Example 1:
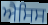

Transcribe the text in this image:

ਐਸਿਸ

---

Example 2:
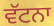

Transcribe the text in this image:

ਵੱਟਨਾ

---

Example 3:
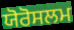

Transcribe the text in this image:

ਯੋਰੋਸਲਮ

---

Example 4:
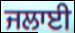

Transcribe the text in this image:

ਜਲਾਈ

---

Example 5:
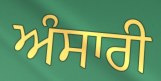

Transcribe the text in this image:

ਅੰਸਾਰੀ